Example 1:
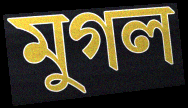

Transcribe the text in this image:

মুগল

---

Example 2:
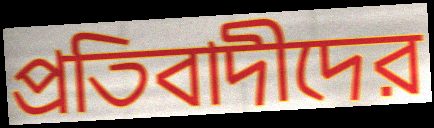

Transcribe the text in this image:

প্রতিবাদীদের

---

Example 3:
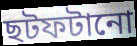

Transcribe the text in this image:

ছটফটানো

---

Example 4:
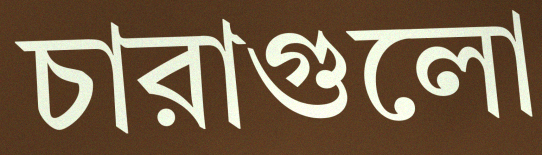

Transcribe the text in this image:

চারাগুলো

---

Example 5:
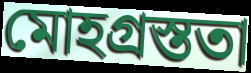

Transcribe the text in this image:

মোহগ্রস্ততা